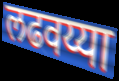
लढवय्या